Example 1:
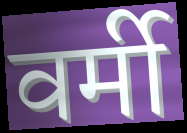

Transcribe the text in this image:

वर्मी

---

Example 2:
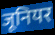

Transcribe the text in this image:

जूनियर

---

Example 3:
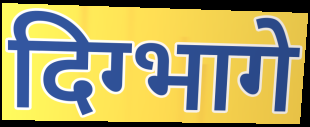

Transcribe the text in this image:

दिग्भागे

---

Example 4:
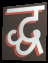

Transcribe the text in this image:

द्ध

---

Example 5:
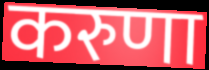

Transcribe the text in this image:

करुणा